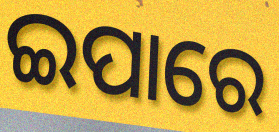
ଇପାରେ